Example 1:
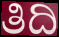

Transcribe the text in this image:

ತಿದಿ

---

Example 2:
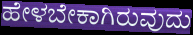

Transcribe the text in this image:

ಹೇಳಬೇಕಾಗಿರುವುದು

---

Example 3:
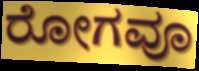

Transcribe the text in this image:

ರೋಗವೂ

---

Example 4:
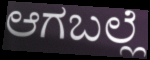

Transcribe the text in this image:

ಆಗಬಲ್ಲೆ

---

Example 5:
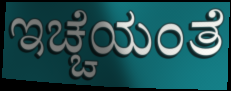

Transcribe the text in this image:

ಇಚ್ಚೆಯಂತೆ